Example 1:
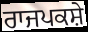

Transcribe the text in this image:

ਰਾਜਪਕਸ਼ੇ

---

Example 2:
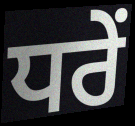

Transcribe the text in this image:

ਧਰੇਂ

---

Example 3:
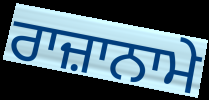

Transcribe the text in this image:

ਰਾਜ਼ਾਨਾਮੇ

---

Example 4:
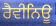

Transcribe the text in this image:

ਰੈਵੀਨਿਊ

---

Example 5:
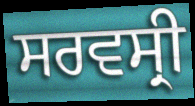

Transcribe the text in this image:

ਸਰਵਸ੍ਰੀ